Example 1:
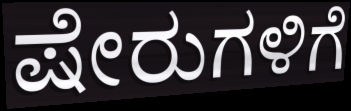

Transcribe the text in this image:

ಷೇರುಗಳಿಗೆ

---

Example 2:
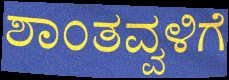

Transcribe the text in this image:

ಶಾಂತವ್ವಳಿಗೆ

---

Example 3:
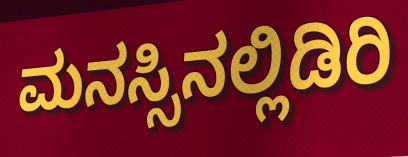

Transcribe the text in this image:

ಮನಸ್ಸಿನಲ್ಲಿಡಿರಿ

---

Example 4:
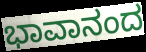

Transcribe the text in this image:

ಭಾವಾನಂದ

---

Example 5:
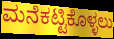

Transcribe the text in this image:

ಮನೆಕಟ್ಟಿಕೊಳ್ಳಲು